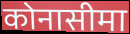
कोनासीमा